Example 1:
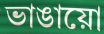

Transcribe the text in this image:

ভাঙায়ো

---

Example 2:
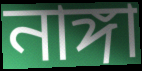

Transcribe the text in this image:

নাঙ্গা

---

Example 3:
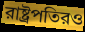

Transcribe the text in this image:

রাষ্ট্রপতিরও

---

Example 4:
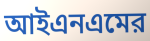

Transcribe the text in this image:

আইএনএমের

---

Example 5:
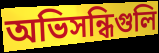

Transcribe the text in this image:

অভিসন্ধিগুলি